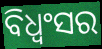
ବିଧ୍ୱଂସର